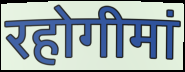
रहोगीमां